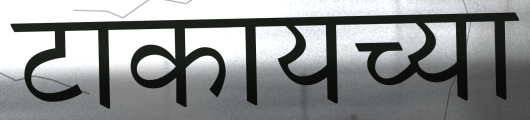
टाकायच्या